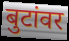
बुटांवर